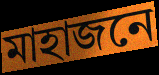
মাহাজনে